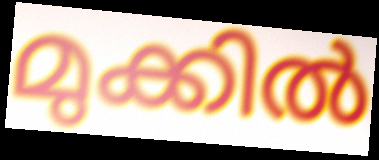
മുക്കിൽ